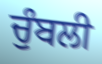
ਚੁੰਬਲੀ